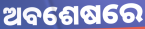
ଅବଶେଷରେ